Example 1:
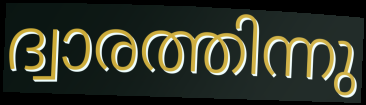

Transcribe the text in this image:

ദ്വാരത്തിന്നു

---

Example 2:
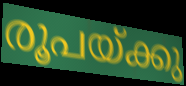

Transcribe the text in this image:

രൂപയ്ക്കു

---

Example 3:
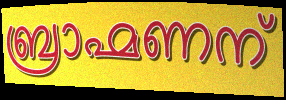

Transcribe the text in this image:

ബ്രാഹ്മണന്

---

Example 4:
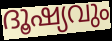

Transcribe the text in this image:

ദൂഷ്യവും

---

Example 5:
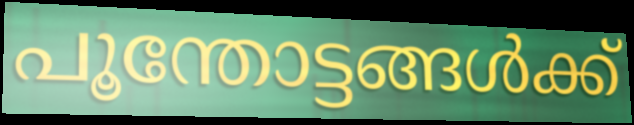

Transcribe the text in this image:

പൂന്തോട്ടങ്ങൾക്ക്